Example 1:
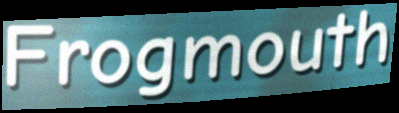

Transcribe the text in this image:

Frogmouth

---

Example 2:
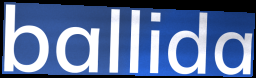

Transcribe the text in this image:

ballida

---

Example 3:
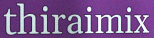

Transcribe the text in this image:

thiraimix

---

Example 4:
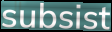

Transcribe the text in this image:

subsist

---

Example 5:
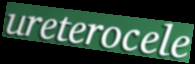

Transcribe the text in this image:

ureterocele